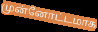
முன்னோட்டமாக